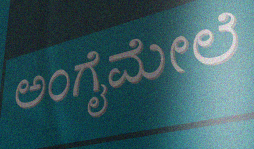
ಅಂಗೈಮೇಲೆ